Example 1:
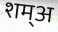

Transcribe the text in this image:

शम्अ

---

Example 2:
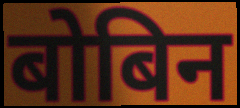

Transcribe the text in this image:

बोबिन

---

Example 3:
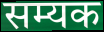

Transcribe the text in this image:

सम्यक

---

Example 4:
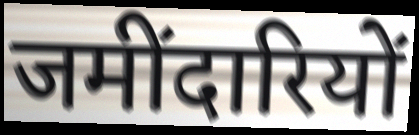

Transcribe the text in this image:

जमींदारियों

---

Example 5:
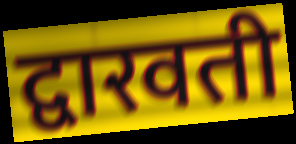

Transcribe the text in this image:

द्वारवती